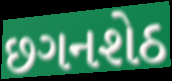
છગનશેઠ